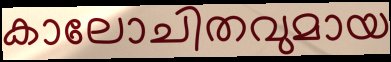
കാലോചിതവുമായ